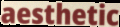
aesthetic